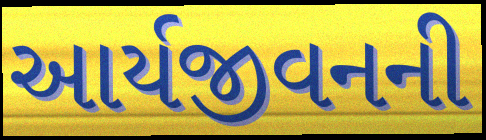
આર્યજીવનની